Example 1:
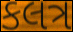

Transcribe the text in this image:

કલત્ર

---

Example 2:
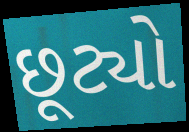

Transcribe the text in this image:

છૂટ્યો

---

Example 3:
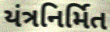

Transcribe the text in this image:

યંત્રનિર્મિત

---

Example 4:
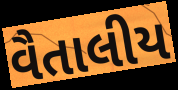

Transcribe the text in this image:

વૈતાલીય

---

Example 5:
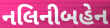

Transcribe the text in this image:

નલિનીબહેન